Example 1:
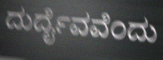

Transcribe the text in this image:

ದುರ್ದೈವವೆಂದು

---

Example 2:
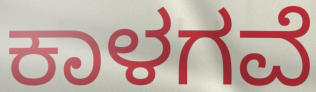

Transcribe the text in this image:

ಕಾಳಗವೆ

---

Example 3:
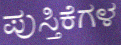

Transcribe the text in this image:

ಪುಸ್ತಿಕೆಗಳ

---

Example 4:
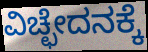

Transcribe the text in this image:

ವಿಚ್ಛೇದನಕ್ಕೆ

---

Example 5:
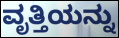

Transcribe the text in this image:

ವೃತ್ತಿಯನ್ನು